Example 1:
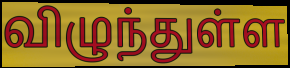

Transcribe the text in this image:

விழுந்துள்ள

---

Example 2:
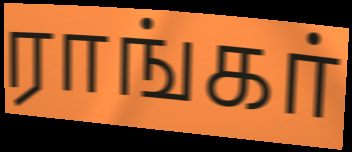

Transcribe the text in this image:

ராங்கர்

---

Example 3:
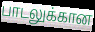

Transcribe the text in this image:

பாடலுக்கான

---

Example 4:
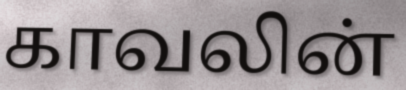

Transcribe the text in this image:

காவலின்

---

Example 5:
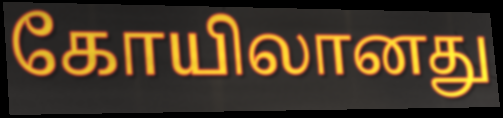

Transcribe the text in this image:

கோயிலானது